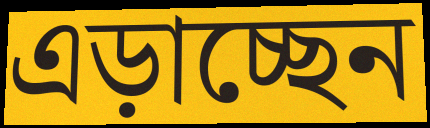
এড়াচ্ছেন